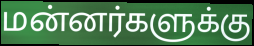
மன்னர்களுக்கு